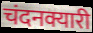
चंदनक्यारी